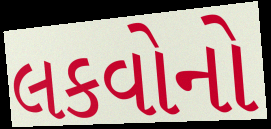
લકવોનો